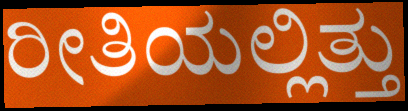
ರೀತಿಯಲ್ಲಿತ್ತು